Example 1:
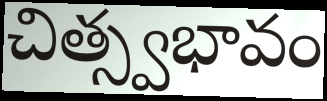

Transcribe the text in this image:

చిత్స్వభావం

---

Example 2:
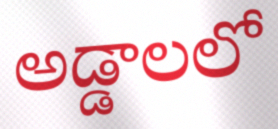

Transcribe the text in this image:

అడ్డాలలో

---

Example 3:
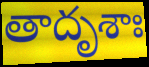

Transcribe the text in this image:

తాదృశాః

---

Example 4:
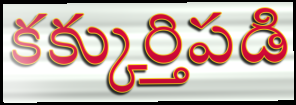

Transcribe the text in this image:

కక్కుర్తిపడి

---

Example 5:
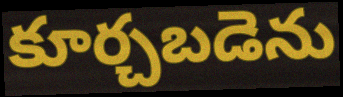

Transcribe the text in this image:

కూర్చబడెను